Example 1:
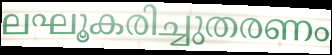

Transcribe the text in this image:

ലഘൂകരിച്ചുതരണം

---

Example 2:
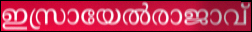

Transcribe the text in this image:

ഇസ്രായേൽരാജാവ്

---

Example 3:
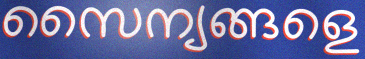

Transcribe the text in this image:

സൈന്യങ്ങളെ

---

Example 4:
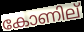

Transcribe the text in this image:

കോണില്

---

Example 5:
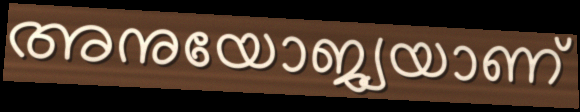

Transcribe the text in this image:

അനുയോജ്യയാണ്